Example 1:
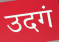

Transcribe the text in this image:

उदगं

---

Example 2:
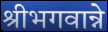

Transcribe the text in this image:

श्रीभगवान्ने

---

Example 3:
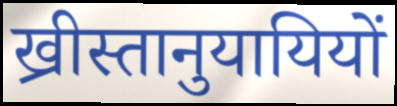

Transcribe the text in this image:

ख्रीस्तानुयायियों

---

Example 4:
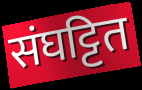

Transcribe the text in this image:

संघट्टित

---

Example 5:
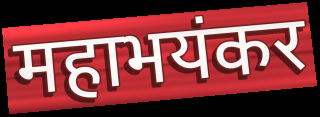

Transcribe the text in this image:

महाभयंकर